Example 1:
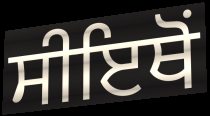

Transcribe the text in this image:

ਸੀਇਥੋਂ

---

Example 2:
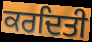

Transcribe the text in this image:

ਕਰਦਿਤੀ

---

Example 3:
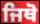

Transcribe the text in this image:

ਜਿਥੋ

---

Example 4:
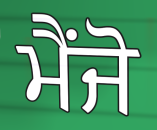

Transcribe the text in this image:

ਮੈਂਜੋ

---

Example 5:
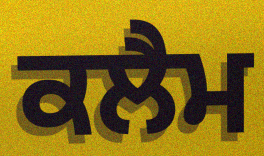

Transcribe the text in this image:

ਕਲੈਮ